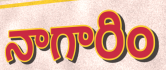
నాగారిం